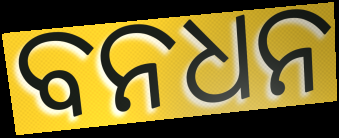
ବନଧନ